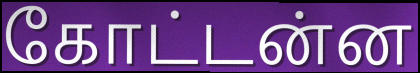
கோட்டன்ன